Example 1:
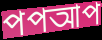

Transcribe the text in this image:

পপআপ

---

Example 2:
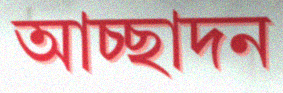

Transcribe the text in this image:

আচ্ছাদন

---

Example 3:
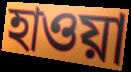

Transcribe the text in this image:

হাওয়া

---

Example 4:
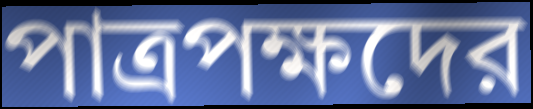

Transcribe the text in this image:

পাত্রপক্ষদের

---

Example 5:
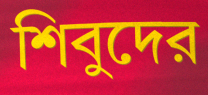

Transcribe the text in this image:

শিবুদের